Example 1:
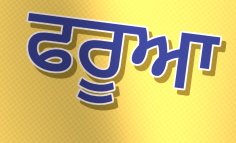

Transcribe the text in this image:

ਫਰੂਆ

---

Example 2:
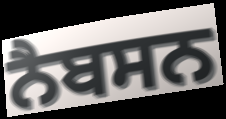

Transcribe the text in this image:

ਨੈਬਸਨ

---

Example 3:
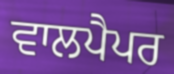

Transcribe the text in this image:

ਵਾਲਪੈਪਰ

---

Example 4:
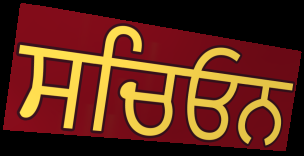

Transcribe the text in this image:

ਸਚਿਓਨ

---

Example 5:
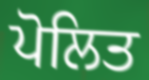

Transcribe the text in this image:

ਪੋਲਿਤ